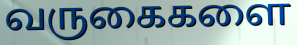
வருகைகளை